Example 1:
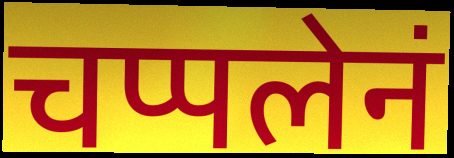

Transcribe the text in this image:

चप्पलेनं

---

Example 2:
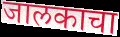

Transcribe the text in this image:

जालकाचा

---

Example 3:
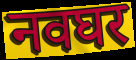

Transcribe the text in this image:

नवघर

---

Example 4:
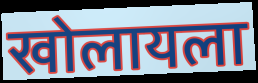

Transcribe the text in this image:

खोलायला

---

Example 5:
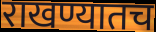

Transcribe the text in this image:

राखण्यातच